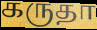
கருதா